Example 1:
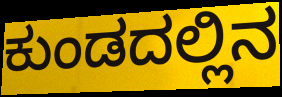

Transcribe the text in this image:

ಕುಂಡದಲ್ಲಿನ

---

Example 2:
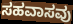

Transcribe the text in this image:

ಸಹವಾಸವು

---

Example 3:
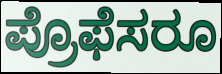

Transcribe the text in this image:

ಪ್ರೊಫೆಸರೂ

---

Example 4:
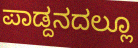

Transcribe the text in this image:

ಪಾಡ್ದನದಲ್ಲೂ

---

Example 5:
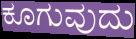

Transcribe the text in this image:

ಕೂಗುವುದು